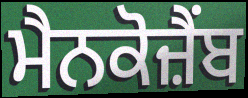
ਮੈਨਕੋਜ਼ੈਂਬ